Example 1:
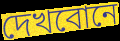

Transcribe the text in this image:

দেখবোনে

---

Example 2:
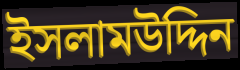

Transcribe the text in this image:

ইসলামউদ্দিন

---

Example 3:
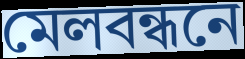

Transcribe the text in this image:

মেলবন্ধনে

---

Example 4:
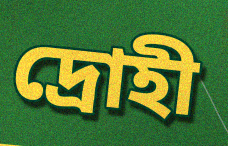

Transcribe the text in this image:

দ্রোহী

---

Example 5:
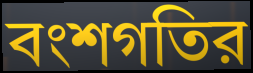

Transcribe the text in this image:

বংশগতির